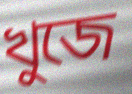
খুজে